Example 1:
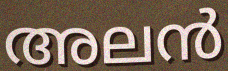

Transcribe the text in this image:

അലൻ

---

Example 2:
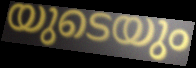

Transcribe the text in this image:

യുടെയും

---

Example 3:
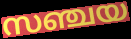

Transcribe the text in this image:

സഞ്ചയ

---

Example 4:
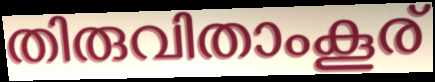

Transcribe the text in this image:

തിരുവിതാംകൂര്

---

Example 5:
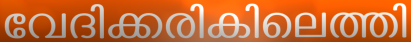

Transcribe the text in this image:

വേദിക്കരികിലെത്തി